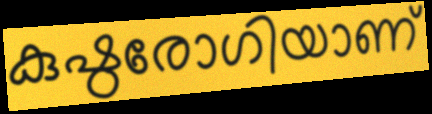
കുഷ്ഠരോഗിയാണ്